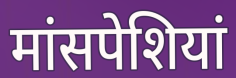
मांसपेशियां